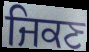
ਜਿਕਣ